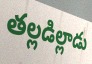
తల్లడిల్లాడు